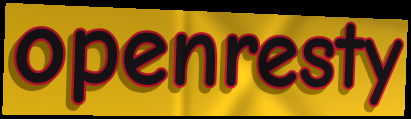
openresty